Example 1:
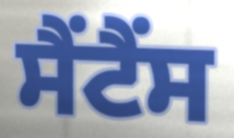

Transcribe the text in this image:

ਸੈਂਟੈਂਸ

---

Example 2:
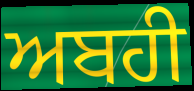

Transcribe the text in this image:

ਅਬਹੀ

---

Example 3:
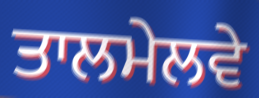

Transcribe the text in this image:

ਤਾਲਮੇਲਵੇ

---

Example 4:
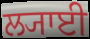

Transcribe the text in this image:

ਲ੍ਯਾਈ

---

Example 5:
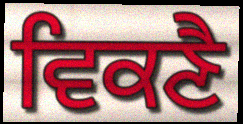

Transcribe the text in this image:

ਵਿਕਣੈ